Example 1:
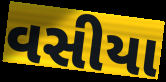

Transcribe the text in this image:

વસીયા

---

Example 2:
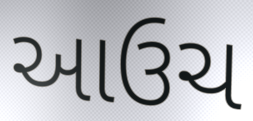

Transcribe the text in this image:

આઉચ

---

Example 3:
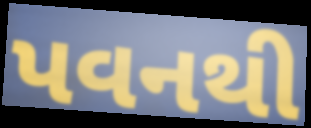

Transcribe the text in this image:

પવનથી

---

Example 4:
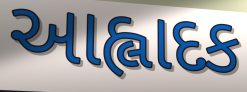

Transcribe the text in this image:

આહ્લાદક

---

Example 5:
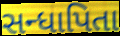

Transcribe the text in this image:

સન્ધાપિતા